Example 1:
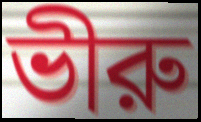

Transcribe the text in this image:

ভীরু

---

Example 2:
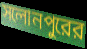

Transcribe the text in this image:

সলোনপুরের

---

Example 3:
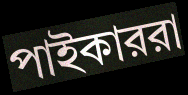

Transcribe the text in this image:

পাইকাররা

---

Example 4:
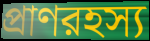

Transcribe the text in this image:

প্রাণরহস্য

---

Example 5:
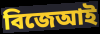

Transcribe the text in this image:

বিজেআই